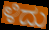
ಳಿದು